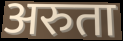
अरुता